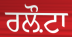
ਰਲ਼ੌਟਾ